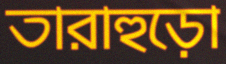
তারাহুড়ো